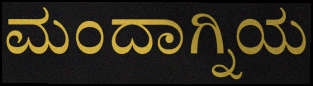
ಮಂದಾಗ್ನಿಯ